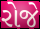
રોજે